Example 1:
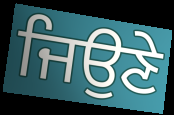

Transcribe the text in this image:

ਜਿਉਣੇ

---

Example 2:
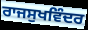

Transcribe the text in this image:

ਰਾਜਸੁਖਵਿੰਦਰ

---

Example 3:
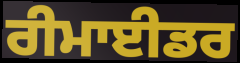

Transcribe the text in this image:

ਰੀਮਾਈਡਰ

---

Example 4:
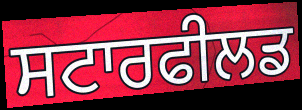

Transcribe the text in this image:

ਸਟਾਰਫੀਲਡ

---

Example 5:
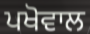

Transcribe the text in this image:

ਪਖੋਵਾਲ